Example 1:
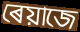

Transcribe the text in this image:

ৰেয়াজে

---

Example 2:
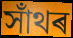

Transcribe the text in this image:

সাঁথৰ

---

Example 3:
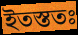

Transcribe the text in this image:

ইতস্ততঃ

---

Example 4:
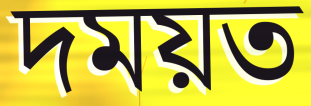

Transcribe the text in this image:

দময়ত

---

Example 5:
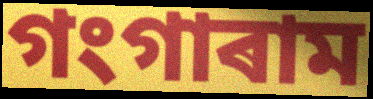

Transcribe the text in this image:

গংগাৰাম